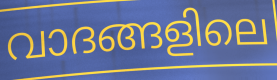
വാദങ്ങളിലെ